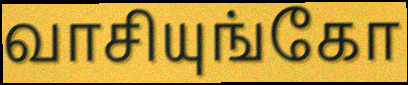
வாசியுங்கோ